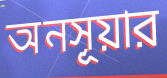
অনসূয়ার